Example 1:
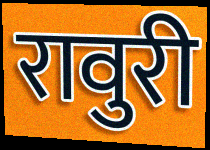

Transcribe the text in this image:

रावुरी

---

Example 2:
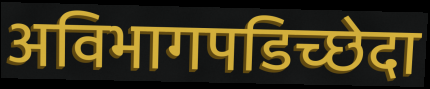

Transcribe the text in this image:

अविभागपडिच्छेदा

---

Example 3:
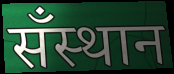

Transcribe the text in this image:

सँस्थान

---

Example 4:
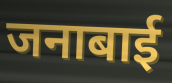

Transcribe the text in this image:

जनाबाई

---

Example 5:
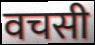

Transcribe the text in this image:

वचसी